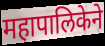
महापालिकेने